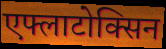
एफ्लाटोक्सिन